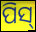
ପିସ୍